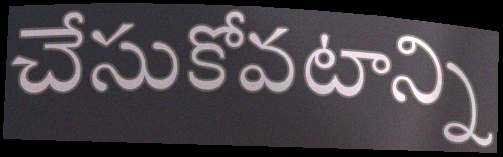
చేసుకోవటాన్ని